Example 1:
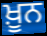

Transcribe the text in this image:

ਖ਼ੂਨ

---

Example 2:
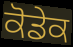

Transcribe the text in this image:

ਕੋਡੇਕ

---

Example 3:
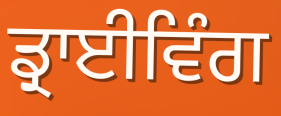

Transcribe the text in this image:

ਡ੍ਰਾਈਵਿੰਗ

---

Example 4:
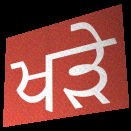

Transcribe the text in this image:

ਖੜੇ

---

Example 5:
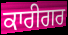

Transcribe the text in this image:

ਕਾਰੀਗਰ